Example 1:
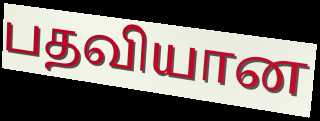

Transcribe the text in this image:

பதவியான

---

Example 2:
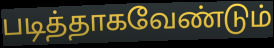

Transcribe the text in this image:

படித்தாகவேண்டும்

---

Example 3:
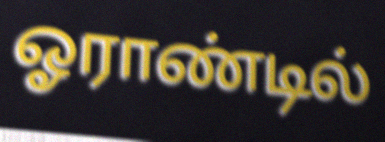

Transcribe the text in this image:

ஓராண்டில்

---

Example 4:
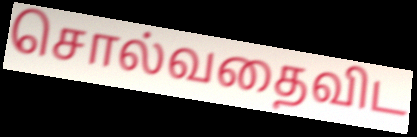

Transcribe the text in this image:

சொல்வதைவிட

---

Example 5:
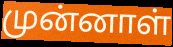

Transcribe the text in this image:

முன்னாள்